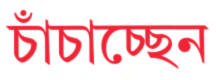
চাঁচাচ্ছেন